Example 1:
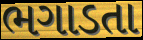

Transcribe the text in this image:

ભગાડતા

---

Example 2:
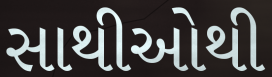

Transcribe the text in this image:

સાથીઓથી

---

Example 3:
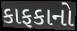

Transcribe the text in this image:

કાફકાનો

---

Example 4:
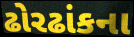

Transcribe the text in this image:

ઢોરઢાંકના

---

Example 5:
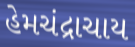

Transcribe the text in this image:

હેમચંદ્રાચાય